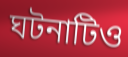
ঘটনাটিও